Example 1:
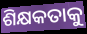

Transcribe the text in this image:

ଶିକ୍ଷକତାକୁ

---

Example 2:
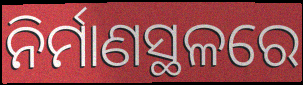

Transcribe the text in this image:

ନିର୍ମାଣସ୍ଥଳରେ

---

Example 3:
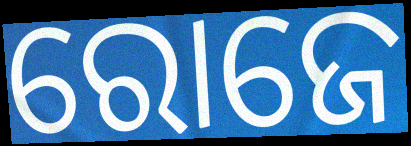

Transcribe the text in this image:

ରୋଜେ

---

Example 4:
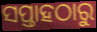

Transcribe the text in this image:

ସପ୍ତାହଠାରୁ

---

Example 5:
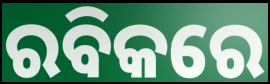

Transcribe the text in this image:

ରବିକରେ